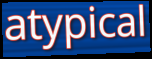
atypical